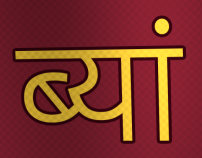
ब्यां